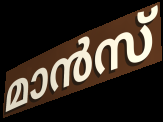
മാൻസ്